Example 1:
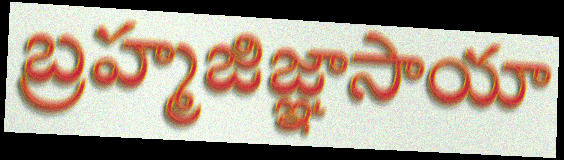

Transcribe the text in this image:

బ్రహ్మజిజ్ఞాసాయా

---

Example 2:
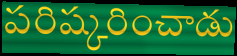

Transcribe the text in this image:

పరిష్కరించాడు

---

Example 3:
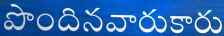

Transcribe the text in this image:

పొందినవారుకారు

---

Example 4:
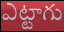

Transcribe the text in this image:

ఎట్టాగు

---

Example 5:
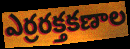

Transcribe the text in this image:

ఎర్రరక్తకణాల